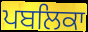
ਪਬਲਿਕਾ